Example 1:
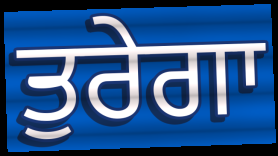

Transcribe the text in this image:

ਤੁਰੇਗਾ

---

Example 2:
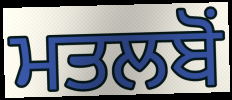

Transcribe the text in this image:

ਮਤਲਬੋਂ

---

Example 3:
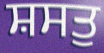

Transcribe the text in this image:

ਸ਼ਸਤੁ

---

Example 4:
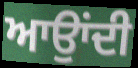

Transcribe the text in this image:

ਆਉਾਂਦੀ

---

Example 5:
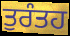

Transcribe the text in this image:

ਤੁਰੰਤਹ